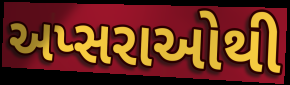
અપ્સરાઓથી